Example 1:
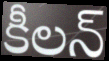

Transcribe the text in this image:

కీలన్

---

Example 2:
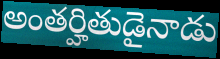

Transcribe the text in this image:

అంతర్హితుడైనాడు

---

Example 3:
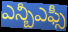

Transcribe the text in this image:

ఎన్బీఎఫ్సీ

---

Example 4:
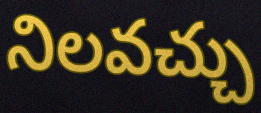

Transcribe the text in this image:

నిలవచ్చు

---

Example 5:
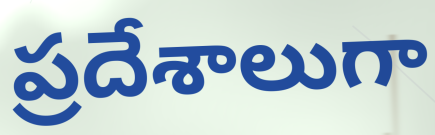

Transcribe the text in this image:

ప్రదేశాలుగా